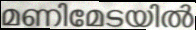
മണിമേടയിൽ